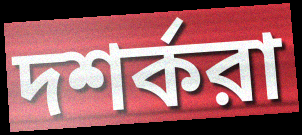
দশর্করা